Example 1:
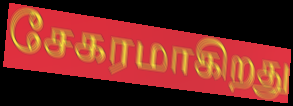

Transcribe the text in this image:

சேகரமாகிறது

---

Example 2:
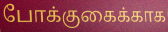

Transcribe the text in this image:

போக்குகைக்காக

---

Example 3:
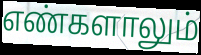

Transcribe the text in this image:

எண்களாலும்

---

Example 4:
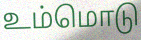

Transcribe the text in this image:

உம்மொடு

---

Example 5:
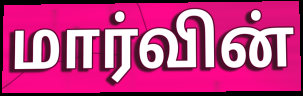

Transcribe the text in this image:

மார்வின்